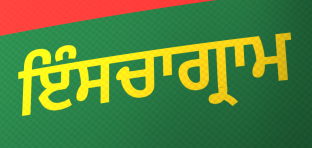
ਇੰਸਚਾਗ੍ਰਾਮ